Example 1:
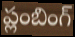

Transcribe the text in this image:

ప్లంబింగ్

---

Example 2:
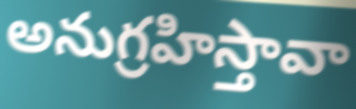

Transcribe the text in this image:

అనుగ్రహిస్తావా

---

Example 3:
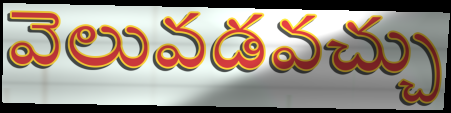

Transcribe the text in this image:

వెలువడవచ్చు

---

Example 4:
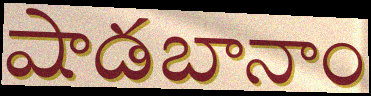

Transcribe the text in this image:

షాడబానాం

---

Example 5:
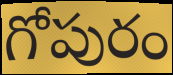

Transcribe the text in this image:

గోపురం